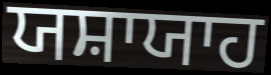
ਯਸ਼ਾਯਾਹ